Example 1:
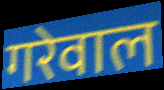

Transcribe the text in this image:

गरेवाल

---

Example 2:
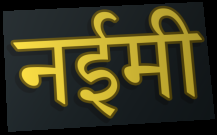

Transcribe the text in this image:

नईमी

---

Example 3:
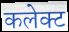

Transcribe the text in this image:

कलेक्ट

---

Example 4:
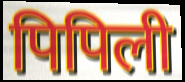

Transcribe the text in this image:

पिपिली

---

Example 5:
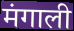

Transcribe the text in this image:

मंगाली